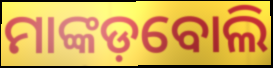
ମାଙ୍କଡ଼ବୋଲି